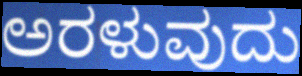
ಅರಳುವುದು